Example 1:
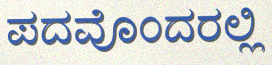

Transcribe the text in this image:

ಪದವೊಂದರಲ್ಲಿ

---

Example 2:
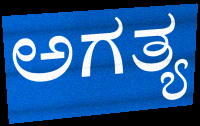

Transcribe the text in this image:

ಅಗತ್ಯ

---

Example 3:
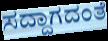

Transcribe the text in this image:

ಸದ್ದಾಗದಂತೆ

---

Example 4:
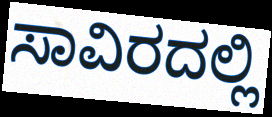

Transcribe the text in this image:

ಸಾವಿರದಲ್ಲಿ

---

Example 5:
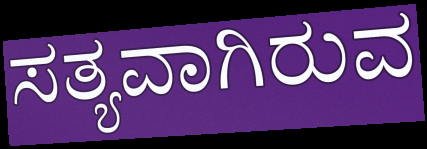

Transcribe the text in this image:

ಸತ್ಯವಾಗಿರುವ